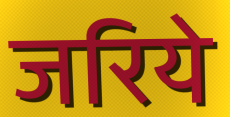
जरिये